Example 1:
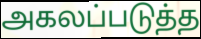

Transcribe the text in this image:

அகலப்படுத்த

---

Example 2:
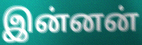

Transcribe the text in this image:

இன்னன்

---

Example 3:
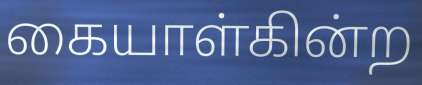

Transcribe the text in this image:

கையாள்கின்ற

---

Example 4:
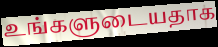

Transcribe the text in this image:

உங்களுடையதாக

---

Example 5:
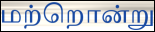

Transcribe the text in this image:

மற்றொன்று